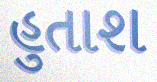
હુતાશ